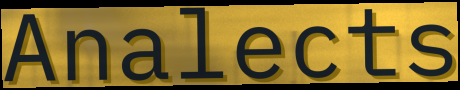
Analects